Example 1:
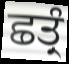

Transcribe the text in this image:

ਛਤ੍ਰੰ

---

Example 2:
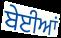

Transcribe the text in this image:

ਬੇਈਆਂ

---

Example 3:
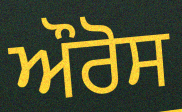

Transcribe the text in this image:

ਔਰੋਸ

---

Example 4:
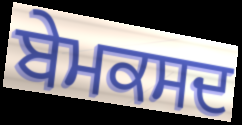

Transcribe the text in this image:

ਬੇਮਕਸਦ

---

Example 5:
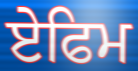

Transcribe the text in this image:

ਏਫਿਮ